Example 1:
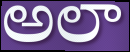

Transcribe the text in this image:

అలా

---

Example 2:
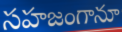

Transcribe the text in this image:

సహజంగానూ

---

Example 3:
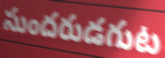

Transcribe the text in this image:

సుందరుడగుట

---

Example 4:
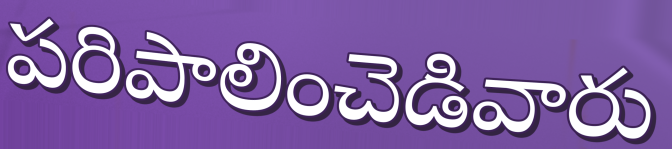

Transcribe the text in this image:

పరిపాలించెడివారు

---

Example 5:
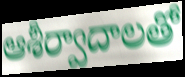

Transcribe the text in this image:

ఆశీర్వాదాలతో